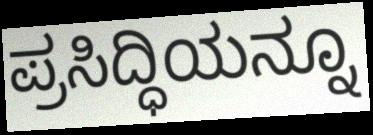
ಪ್ರಸಿದ್ಧಿಯನ್ನೂ